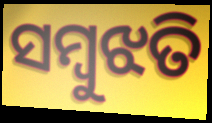
ସମ୍ବୁଝତି